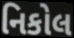
નિકોલ